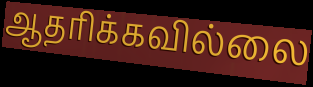
ஆதரிக்கவில்லை